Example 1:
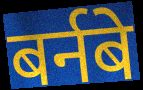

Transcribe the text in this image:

बर्नबे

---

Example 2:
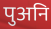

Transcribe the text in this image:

पुअनि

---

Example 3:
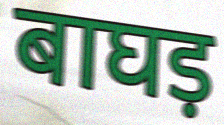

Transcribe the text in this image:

बाघड़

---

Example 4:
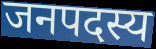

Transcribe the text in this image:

जनपदस्य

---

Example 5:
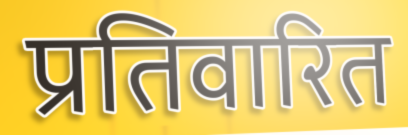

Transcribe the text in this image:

प्रतिवारित